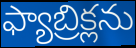
ఫ్యాబ్రిక్లను